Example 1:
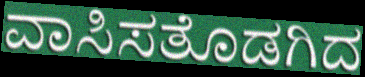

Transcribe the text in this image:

ವಾಸಿಸತೊಡಗಿದ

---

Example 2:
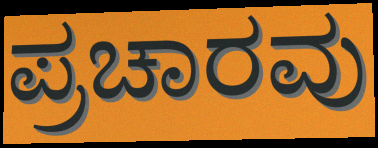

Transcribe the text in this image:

ಪ್ರಚಾರವು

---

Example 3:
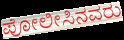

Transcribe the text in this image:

ಪೋಲೀಸಿನವರು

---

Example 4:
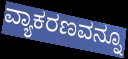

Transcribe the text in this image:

ವ್ಯಾಕರಣವನ್ನೂ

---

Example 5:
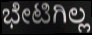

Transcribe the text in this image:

ಭೇಟಿಗಿಲ್ಲ